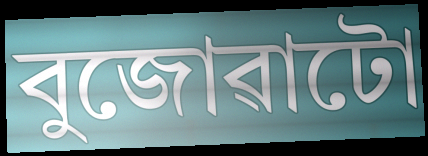
বুজোৱাটো